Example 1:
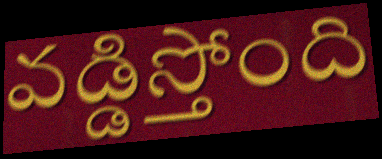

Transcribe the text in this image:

వడ్డిస్తోంది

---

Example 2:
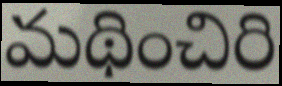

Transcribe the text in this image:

మథించిరి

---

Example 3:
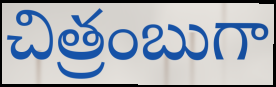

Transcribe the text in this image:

చిత్రంబుగా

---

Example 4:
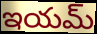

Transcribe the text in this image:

ఇయమ్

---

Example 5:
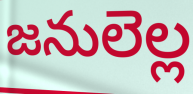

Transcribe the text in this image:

జనులెల్ల